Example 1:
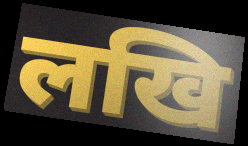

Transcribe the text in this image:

लखि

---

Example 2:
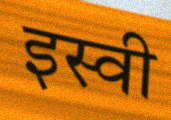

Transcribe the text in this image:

इस्वी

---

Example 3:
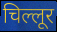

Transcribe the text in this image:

चिल्लूर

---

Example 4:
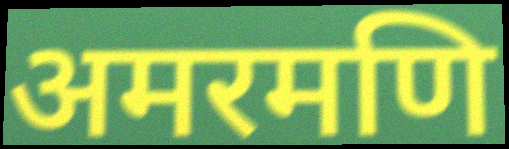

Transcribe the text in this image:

अमरमणि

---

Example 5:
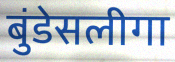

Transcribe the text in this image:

बुंडेसलीगा